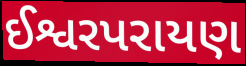
ઈશ્વરપરાયણ